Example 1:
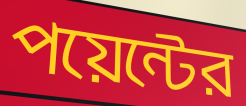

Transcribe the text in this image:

পয়েন্টের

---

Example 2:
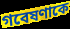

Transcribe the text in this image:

গবেষণাকে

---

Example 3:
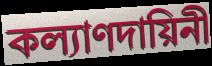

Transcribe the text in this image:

কল্যাণদায়িনী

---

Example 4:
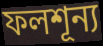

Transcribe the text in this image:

ফলশূন্য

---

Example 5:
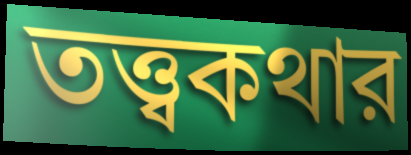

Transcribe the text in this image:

তত্ত্বকথার